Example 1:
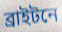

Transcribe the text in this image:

ব্রাইটনে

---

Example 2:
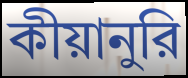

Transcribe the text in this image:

কীয়ানুরি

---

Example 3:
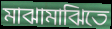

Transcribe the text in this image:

মাঝামাঝিতে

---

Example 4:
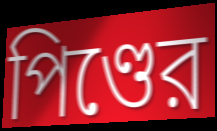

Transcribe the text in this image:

পিণ্ডের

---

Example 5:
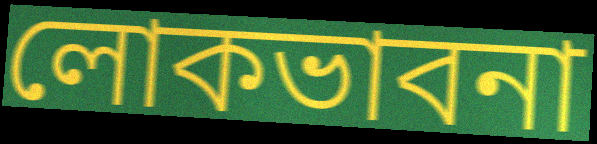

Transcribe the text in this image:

লোকভাবনা